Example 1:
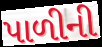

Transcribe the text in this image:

પાળીની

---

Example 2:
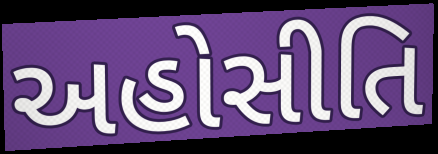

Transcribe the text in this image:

અહોસીતિ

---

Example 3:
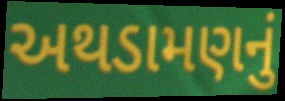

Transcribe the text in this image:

અથડામણનું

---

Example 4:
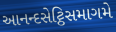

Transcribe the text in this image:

આનન્દસેટ્ઠિસમાગમે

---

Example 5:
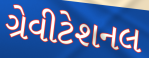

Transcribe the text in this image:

ગ્રેવીટેશનલ